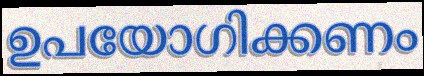
ഉപയോഗിക്കണം